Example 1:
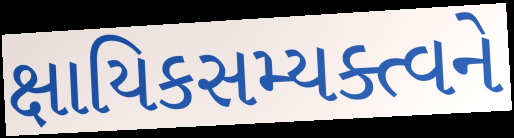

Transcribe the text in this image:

ક્ષાયિકસમ્યક્ત્વને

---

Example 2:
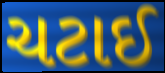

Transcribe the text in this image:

ચટાઈ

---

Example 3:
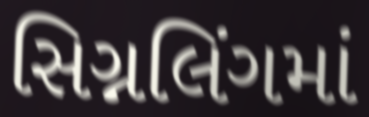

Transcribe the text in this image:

સિગ્નલિંગમાં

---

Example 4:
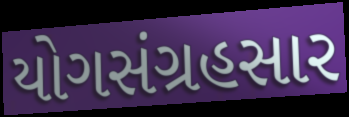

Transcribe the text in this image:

યોગસંગ્રહસાર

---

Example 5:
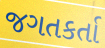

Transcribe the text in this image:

જગતકર્તા